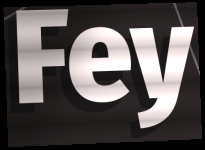
Fey